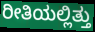
ರೀತಿಯಲ್ಲಿತ್ತು